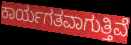
ಕಾರ್ಯಗತವಾಗುತ್ತಿವೆ